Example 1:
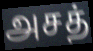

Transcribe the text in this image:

அசத்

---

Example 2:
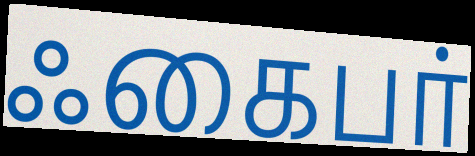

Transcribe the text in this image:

ஃகைபர்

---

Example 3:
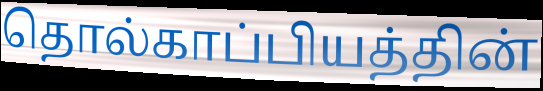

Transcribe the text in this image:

தொல்காப்பியத்தின்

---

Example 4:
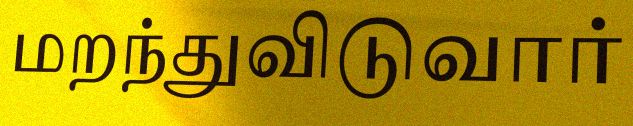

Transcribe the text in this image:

மறந்துவிடுவார்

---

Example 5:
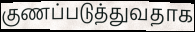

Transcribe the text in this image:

குணப்படுத்துவதாக